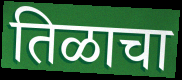
तिळाचा